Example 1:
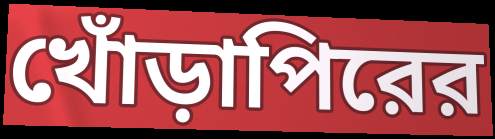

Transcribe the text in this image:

খোঁড়াপিরের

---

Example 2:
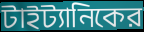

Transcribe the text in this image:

টাইট্যানিকের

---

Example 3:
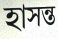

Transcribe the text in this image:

হাসন্ত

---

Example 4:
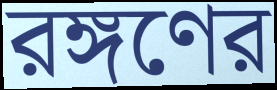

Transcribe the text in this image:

রঙ্গণের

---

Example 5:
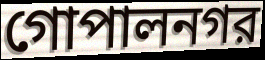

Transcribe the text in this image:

গোপালনগর